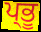
ਪ੍ਭੂ